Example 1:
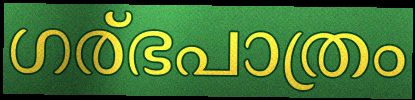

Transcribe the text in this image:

ഗര്ഭപാത്രം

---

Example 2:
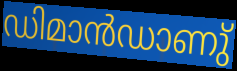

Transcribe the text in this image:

ഡിമാൻഡാണു്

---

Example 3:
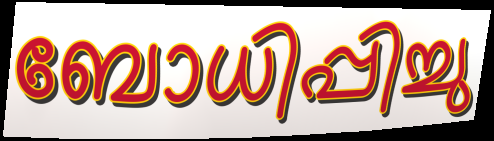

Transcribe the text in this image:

ബോധിപ്പിച്ചു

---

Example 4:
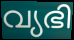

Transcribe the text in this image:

വ്യഭി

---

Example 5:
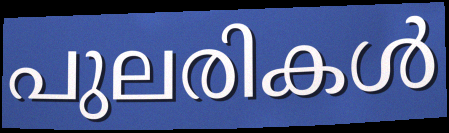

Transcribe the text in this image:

പുലരികൾ